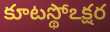
కూటస్థోఽక్షర